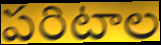
పరిటాల